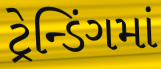
ટ્રેન્ડિંગમાં